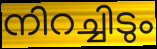
നിറച്ചിടും